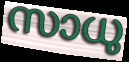
സാധു